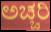
ಅಚ್ಚರಿ